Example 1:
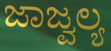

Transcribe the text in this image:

ಜಾಜ್ವಲ್ಯ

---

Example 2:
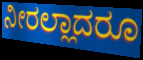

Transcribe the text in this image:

ನೀರಲ್ಲಾದರೂ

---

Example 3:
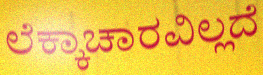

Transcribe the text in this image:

ಲೆಕ್ಕಾಚಾರವಿಲ್ಲದೆ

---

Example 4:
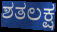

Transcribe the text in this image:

ಶತಲಕ್ಷ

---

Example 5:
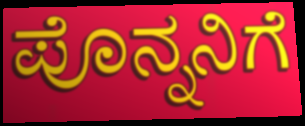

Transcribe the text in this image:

ಪೊನ್ನನಿಗೆ